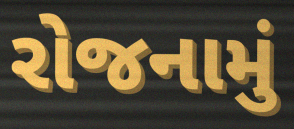
રોજનામું